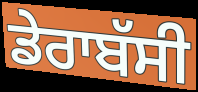
ਡੇਰਾਬੱਸੀ